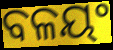
ବଳୟଂ